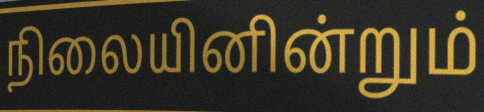
நிலையினின்றும்